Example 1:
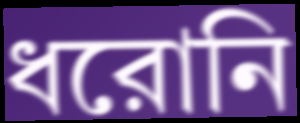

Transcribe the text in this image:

ধরোনি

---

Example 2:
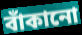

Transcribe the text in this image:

বাঁকানো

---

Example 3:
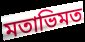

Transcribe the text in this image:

মতাভিমত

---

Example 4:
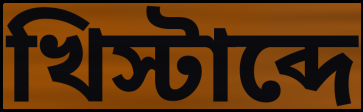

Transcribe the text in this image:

খিস্টাব্দে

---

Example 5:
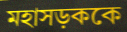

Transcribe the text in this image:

মহাসড়ককে